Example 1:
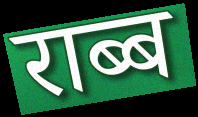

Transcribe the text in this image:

राब्ब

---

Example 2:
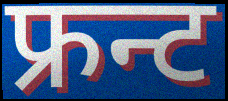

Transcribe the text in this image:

फ्रन्ट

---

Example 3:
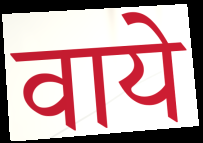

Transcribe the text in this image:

वाये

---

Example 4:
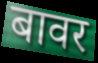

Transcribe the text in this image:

बावर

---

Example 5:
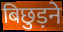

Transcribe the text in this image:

बिछुड़ने